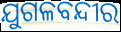
ଯୁଗଳବନ୍ଦୀର